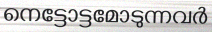
നെട്ടോട്ടമോടുന്നവർ